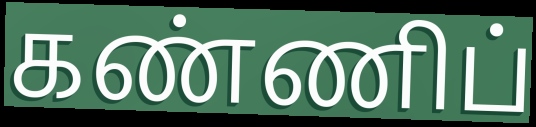
கண்ணிப்